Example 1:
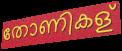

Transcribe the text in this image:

തോണികള്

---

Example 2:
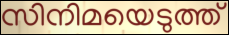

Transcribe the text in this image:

സിനിമയെടുത്ത്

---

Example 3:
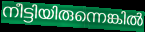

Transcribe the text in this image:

നീട്ടിയിരുന്നെങ്കിൽ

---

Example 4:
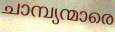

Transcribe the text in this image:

ചാമ്പ്യന്മാരെ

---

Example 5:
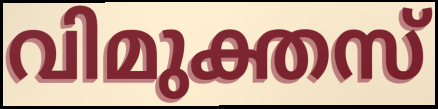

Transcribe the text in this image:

വിമുക്തസ്